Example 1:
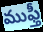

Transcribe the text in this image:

ముఫ్తీ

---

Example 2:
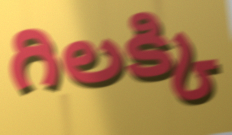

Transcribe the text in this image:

గిలక్కి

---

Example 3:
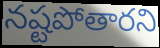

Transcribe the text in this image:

నష్టపోతారని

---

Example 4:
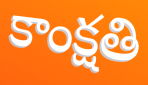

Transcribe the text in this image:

కాంక్షతి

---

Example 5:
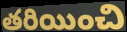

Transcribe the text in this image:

తరియించి